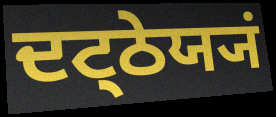
ਦਟ੍ਠੇਯ੍ਯਂ